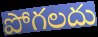
పోగలదు